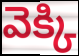
వెక్కి